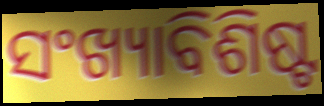
ସଂଖ୍ୟାବିଶିଷ୍ଟ